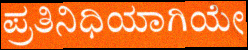
ಪ್ರತಿನಿಧಿಯಾಗಿಯೇ